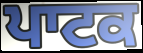
ਪਾਟਕ